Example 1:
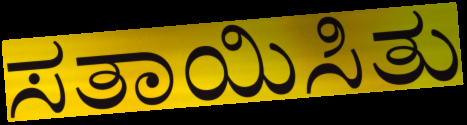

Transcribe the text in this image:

ಸತಾಯಿಸಿತು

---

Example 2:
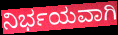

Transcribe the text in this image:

ನಿರ್ಭಯವಾಗಿ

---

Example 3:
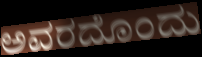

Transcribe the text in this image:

ಅವರದೊಂದು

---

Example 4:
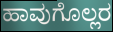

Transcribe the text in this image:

ಹಾವುಗೊಲ್ಲರ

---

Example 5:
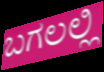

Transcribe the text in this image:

ಬಗಲಲ್ಲಿ